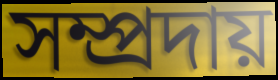
সম্প্ৰদায়